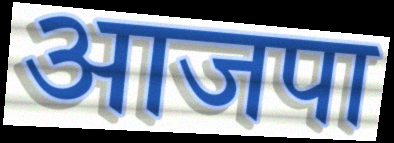
आजपा